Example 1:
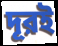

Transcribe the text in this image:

দূরই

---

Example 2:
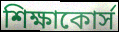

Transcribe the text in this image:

শিক্ষাকোর্স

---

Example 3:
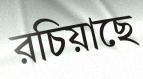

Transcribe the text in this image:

রচিয়াছে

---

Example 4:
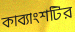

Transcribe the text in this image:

কাব্যাংশটির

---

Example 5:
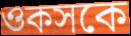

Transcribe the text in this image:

ওকসকে